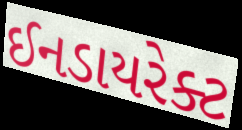
ઈનડાયરેક્ટ